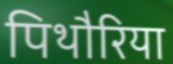
पिथौरिया